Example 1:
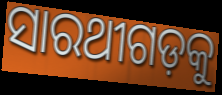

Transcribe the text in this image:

ସାରଥୀଗଡ଼କୁ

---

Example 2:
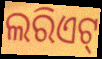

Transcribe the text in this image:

ଲରିଏଟ୍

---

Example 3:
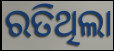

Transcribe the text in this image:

ରତିଥିଲା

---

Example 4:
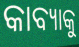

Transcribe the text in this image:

କାବ୍ୟାକୁ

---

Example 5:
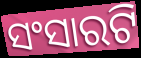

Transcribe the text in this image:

ସଂସାରଟି